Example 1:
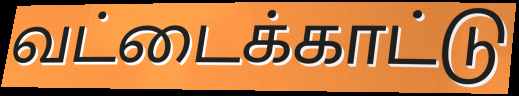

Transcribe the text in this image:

வட்டைக்காட்டு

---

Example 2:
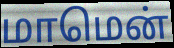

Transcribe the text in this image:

மாமென்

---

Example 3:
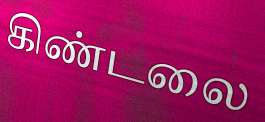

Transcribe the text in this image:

கிண்டலை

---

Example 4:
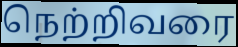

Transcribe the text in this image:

நெற்றிவரை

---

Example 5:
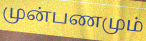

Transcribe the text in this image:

முன்பணமும்